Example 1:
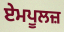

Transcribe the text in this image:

ਏਮਪੂਲਜ਼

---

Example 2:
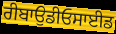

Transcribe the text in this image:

ਰੀਬਾਉਡੀਓਸਾਈਡ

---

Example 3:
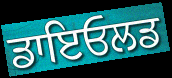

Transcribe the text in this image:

ਡਾਇਓਲਡ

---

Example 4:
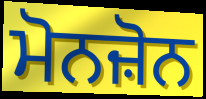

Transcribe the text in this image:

ਮੋਨਜ਼ੋਨ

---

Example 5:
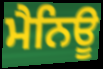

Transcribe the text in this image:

ਮੈਨਿਊ